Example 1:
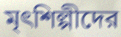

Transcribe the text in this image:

মৃৎশিল্পীদের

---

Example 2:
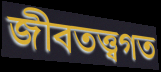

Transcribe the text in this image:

জীবতত্ত্বগত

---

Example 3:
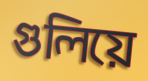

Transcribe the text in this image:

গুলিয়ে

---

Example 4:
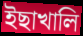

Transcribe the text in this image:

ইছাখালি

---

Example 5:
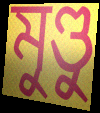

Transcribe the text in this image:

মুণ্ডু